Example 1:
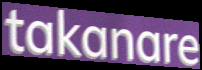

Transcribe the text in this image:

takanare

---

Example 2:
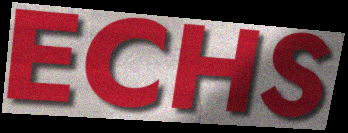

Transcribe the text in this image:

ECHS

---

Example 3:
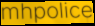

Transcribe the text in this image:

mhpolice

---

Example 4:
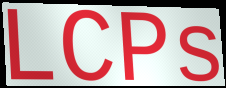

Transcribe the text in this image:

LCPs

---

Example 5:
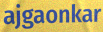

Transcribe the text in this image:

ajgaonkar